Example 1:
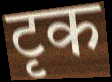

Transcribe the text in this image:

टृक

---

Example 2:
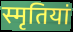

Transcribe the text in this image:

स्मृतियां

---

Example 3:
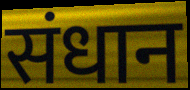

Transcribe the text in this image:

संधान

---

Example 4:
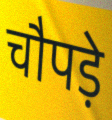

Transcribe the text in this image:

चौपड़े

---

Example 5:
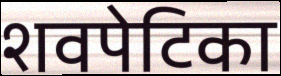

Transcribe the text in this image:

शवपेटिका